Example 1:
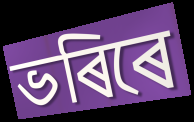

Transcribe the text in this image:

ভৰিৰে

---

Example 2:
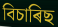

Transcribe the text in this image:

বিচাৰিছ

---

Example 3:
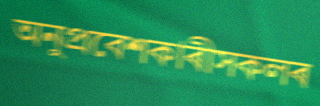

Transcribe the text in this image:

অনুপ্ৰবেশকাৰীসকলৰ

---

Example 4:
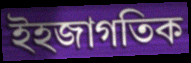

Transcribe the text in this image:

ইহজাগতিক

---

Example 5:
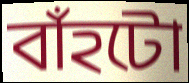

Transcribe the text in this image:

বাঁহটো